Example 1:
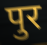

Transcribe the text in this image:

पुर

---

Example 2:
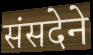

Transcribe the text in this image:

संसदेने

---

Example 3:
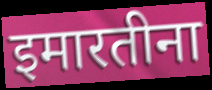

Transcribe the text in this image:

इमारतीना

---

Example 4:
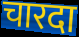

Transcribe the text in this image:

चारदा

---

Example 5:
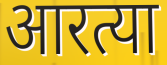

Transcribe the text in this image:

आरत्या